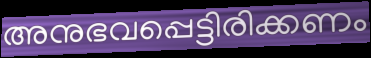
അനുഭവപ്പെട്ടിരിക്കണം